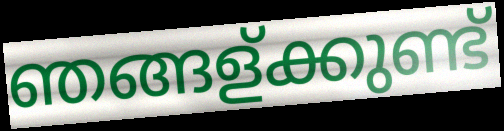
ഞങ്ങള്ക്കുണ്ട്